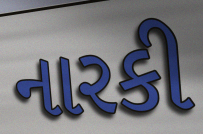
નારકી